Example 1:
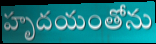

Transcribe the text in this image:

హృదయంతోను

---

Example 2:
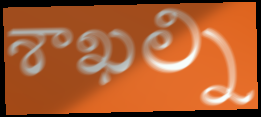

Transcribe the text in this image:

శాఖల్ని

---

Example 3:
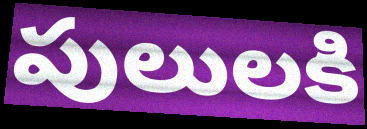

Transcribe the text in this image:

పులులకి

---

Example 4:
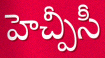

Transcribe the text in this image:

హెచ్పీసీ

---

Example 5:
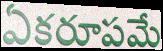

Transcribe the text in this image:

ఏకరూపమే